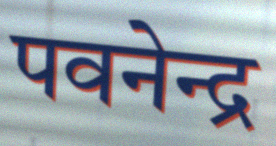
पवनेन्द्र